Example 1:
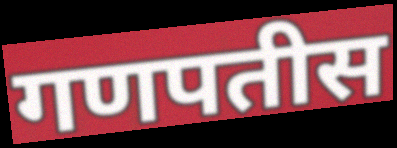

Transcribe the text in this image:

गणपतीस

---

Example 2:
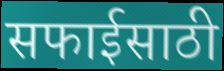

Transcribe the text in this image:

सफाईसाठी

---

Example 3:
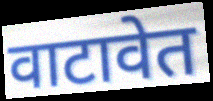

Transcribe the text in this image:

वाटावेत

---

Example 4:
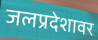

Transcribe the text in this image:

जलप्रदेशावर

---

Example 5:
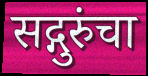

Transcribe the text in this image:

सद्गुरुंचा